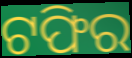
ଟଫିର